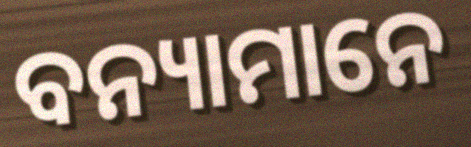
ବନ୍ୟାମାନେ